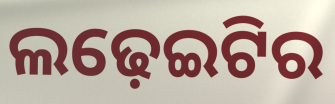
ଲଢ଼େଇଟିର